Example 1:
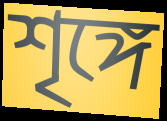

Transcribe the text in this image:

শৃঙ্গে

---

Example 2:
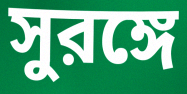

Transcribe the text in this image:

সুরঙ্গে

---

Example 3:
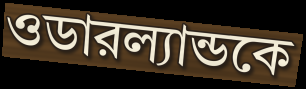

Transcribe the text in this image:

ওডারল্যান্ডকে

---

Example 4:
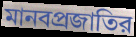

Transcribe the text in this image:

মানবপ্রজাতির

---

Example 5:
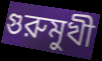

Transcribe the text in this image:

গুরুমুখী